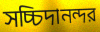
সচ্চিদানন্দর